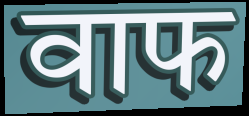
वाफ